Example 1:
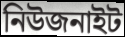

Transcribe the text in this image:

নিউজনাইট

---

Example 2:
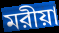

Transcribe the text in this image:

মরীয়া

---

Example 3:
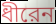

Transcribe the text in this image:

ধীরেন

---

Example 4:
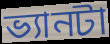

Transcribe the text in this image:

ভ্যানটা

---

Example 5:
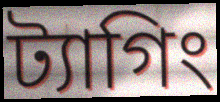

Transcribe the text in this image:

ট্যাগিং